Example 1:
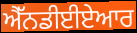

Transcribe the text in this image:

ਐੱਨਡੀਈਏਆਰ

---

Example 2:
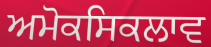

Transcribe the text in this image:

ਅਮੋਕਸਿਕਲਾਵ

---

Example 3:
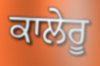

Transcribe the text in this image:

ਕਾਲੇਰੂ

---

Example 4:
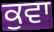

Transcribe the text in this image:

ਕੁਵਾ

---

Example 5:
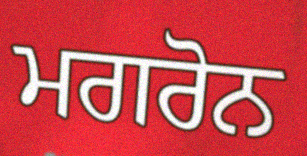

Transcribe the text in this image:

ਮਗਰੋਨ